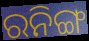
ରନିଙ୍ଗ